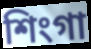
শিংগা